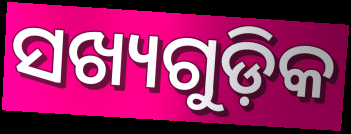
ସଖ୍ୟଗୁଡ଼ିକ